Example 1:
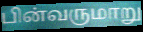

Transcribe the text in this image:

பின்வருமாறு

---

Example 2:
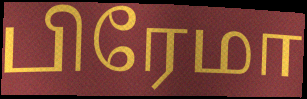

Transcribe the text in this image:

பிரேமா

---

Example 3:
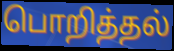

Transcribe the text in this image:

பொறித்தல்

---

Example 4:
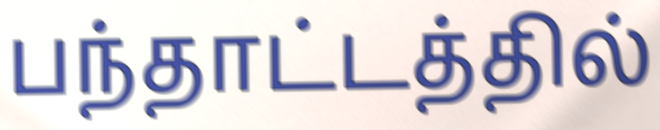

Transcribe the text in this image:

பந்தாட்டத்தில்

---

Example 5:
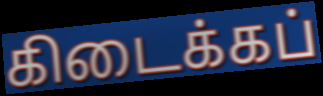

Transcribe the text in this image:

கிடைக்கப்